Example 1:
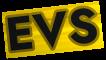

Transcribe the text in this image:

EVS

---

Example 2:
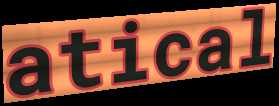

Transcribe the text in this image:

atical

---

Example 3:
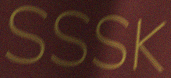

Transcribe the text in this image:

SSSK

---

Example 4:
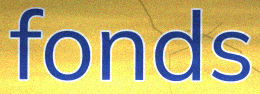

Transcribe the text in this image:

fonds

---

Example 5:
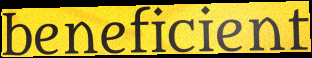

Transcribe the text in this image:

beneficient